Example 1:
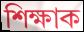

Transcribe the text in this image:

শিক্ষাক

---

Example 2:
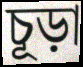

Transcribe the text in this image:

চূড়া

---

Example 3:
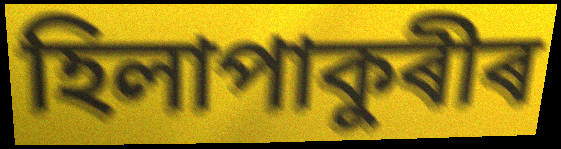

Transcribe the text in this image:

হিলাপাকুৰীৰ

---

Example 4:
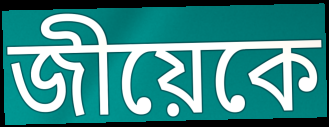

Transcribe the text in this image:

জীয়েকে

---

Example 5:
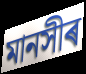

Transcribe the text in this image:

মানসীৰ